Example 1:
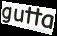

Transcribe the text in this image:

gutta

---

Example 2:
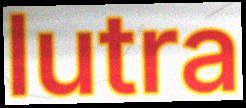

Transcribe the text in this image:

lutra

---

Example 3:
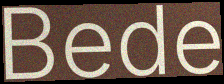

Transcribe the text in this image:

Bede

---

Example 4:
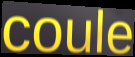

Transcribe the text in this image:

coule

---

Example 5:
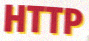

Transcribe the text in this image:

HTTP